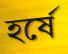
হর্ষে